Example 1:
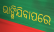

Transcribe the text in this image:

ଭାଙ୍ଗିଯିବାପରେ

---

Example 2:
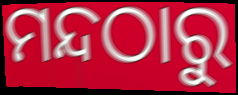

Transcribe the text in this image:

ମନ୍ଦଠାରୁ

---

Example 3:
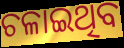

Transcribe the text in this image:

ଚଳାଇଥିବ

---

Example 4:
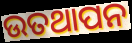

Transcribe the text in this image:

ଉତଥାପନ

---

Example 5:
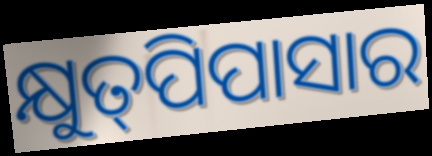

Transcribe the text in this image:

କ୍ଷୁତ୍‍ପିପାସାର